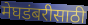
मेघडंबरीसाठी